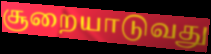
சூறையாடுவது